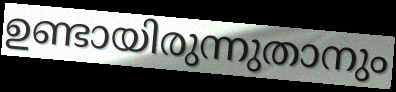
ഉണ്ടായിരുന്നുതാനും